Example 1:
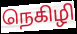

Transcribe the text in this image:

நெகிழி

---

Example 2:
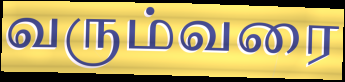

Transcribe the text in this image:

வரும்வரை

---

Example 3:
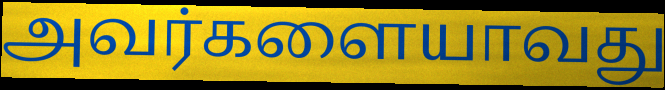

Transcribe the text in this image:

அவர்களையாவது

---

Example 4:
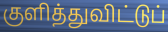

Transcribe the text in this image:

குளித்துவிட்டுப்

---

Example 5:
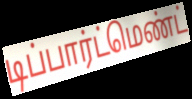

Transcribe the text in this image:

டிப்பார்ட்மெண்ட்